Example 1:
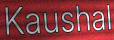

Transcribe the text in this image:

Kaushal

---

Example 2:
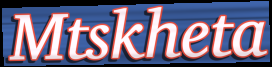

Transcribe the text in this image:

Mtskheta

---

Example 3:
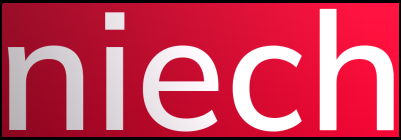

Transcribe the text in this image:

niech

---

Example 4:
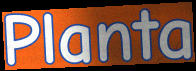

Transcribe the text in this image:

Planta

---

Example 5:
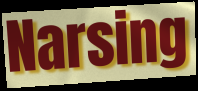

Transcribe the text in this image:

Narsing